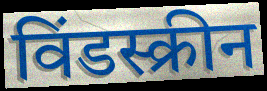
विंडस्क्रीन